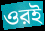
ওরই